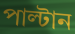
পাল্টান